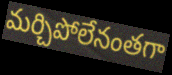
మర్చిపోలేనంతగా